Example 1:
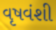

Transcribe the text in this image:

વૃષવંશી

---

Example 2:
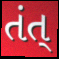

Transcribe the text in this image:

તંત્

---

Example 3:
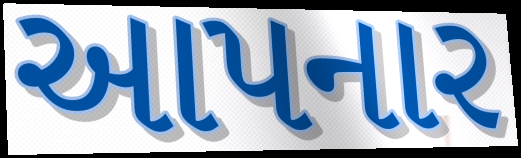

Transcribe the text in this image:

આપનાર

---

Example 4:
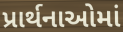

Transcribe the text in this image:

પ્રાર્થનાઓમાં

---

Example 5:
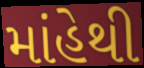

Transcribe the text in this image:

માંહેથી